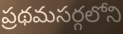
ప్రథమసర్గలోని